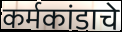
कर्मकांडाचे